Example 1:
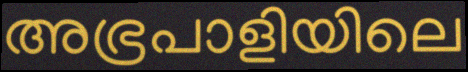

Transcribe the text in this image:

അഭ്രപാളിയിലെ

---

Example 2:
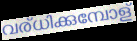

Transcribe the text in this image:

വര്ധിക്കുമ്പോള്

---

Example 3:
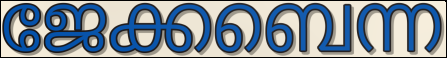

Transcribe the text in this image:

ജേക്കബെന്ന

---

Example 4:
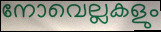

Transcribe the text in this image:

നോവെല്ലകളും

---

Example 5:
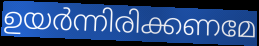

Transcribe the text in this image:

ഉയർന്നിരിക്കണമേ